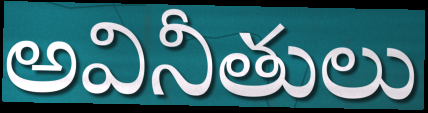
అవినీతులు